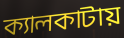
ক্যালকাটায়